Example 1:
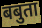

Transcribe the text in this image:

बबुता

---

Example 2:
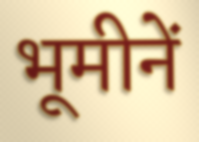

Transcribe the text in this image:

भूमीनें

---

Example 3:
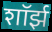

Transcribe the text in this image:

शॉर्झ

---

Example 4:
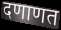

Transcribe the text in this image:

दणाणत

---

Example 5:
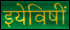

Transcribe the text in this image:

इयेविषीं